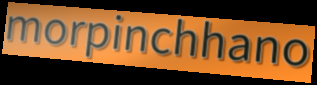
morpinchhano